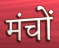
मंचों